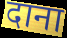
दाना